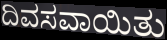
ದಿವಸವಾಯಿತು